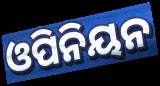
ଓପିନିୟନ